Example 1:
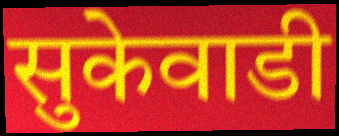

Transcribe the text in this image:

सुकेवाडी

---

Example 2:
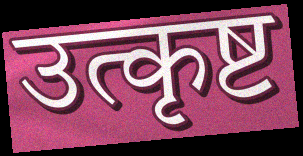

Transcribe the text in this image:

उत्कृष्ट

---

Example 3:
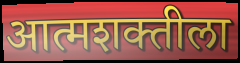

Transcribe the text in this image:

आत्मशक्तीला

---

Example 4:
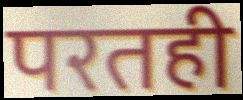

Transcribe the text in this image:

परतही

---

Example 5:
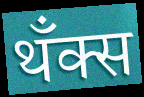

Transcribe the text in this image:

थँक्स